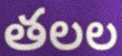
తలల